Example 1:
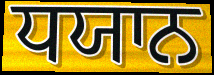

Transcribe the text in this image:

ਧਯਾਨ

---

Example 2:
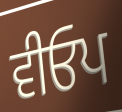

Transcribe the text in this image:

ਵੀਓਪ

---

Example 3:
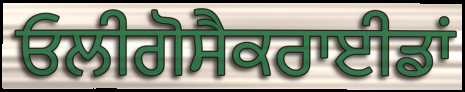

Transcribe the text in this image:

ਓਲੀਗੋਸੈਕਰਾਈਡਾਂ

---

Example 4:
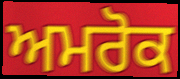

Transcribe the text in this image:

ਅਮਰੋਕ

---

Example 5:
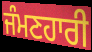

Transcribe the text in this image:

ਜੰਮਣਹਾਰੀ